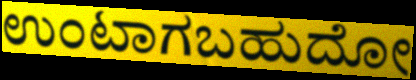
ಉಂಟಾಗಬಹುದೋ